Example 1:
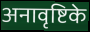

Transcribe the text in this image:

अनावृष्टिके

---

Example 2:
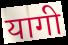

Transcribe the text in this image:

यागी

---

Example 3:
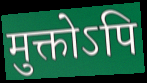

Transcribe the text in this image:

मुक्तोऽपि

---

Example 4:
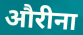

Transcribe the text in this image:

औरीना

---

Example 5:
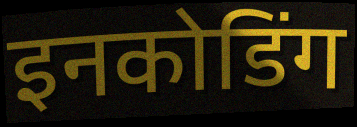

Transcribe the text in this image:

इनकोडिंग